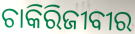
ଚାକିରିଜୀବୀର